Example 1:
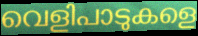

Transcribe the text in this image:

വെളിപാടുകളെ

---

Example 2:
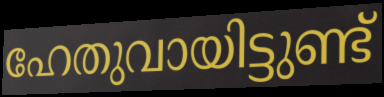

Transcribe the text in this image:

ഹേതുവായിട്ടുണ്ട്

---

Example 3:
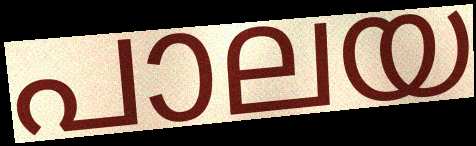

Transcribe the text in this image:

പാലയ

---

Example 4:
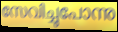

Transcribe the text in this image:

സേവിച്ചുപോന്നു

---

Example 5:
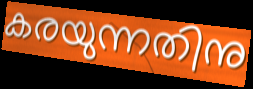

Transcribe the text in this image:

കരയുന്നതിനു